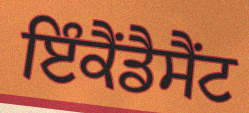
ਇੰਕੈਂਡੈਸੈਂਟ